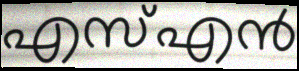
എസ്എൻ